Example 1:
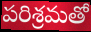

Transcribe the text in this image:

పరిశ్రమతో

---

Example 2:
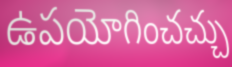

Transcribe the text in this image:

ఉపయోగించచ్చు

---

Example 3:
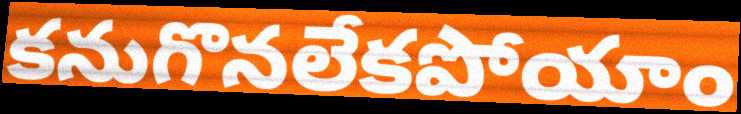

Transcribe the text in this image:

కనుగొనలేకపోయాం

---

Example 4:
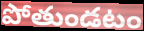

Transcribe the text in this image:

పోతుండటం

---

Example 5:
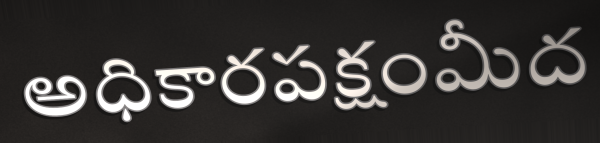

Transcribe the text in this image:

అధికారపక్షంమీద